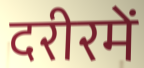
दरीरमें